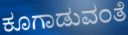
ಕೂಗಾಡುವಂತೆ